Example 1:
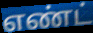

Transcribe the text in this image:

எண்ட்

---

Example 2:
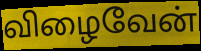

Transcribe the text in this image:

விழைவேன்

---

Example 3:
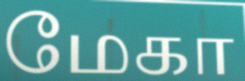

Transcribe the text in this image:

மேகா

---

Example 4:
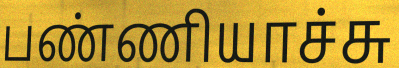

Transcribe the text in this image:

பண்ணியாச்சு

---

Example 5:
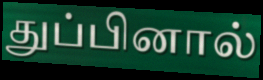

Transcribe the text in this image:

துப்பினால்